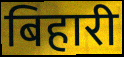
बिहारी